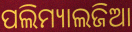
ପଲିମ୍ୟାଲଜିଆ